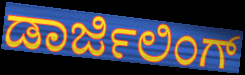
ಡಾರ್ಜಿಲಿಂಗ್